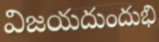
విజయదుందుభి